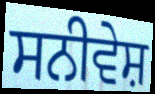
ਸਨੀਵੇਸ਼